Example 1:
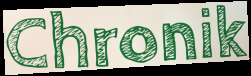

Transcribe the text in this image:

Chronik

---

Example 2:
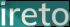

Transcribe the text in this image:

ireto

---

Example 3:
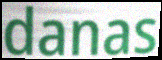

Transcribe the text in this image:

danas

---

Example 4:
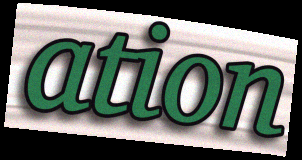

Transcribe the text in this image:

ation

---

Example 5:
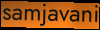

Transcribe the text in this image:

samjavani